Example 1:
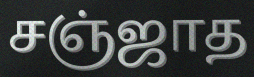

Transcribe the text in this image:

சஞ்ஜாத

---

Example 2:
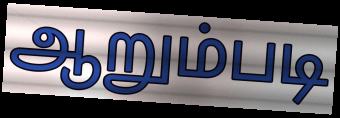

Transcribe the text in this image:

ஆறும்படி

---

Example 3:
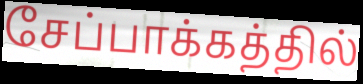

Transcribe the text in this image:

சேப்பாக்கத்தில்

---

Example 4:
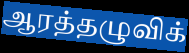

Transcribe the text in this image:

ஆரத்தழுவிக்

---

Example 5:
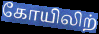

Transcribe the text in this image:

கோயிலிற்